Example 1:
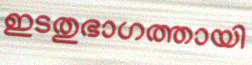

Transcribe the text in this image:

ഇടതുഭാഗത്തായി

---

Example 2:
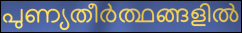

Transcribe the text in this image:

പുണ്യതീർത്ഥങ്ങളിൽ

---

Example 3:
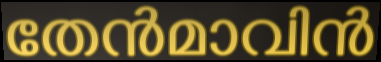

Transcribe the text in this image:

തേൻമാവിൻ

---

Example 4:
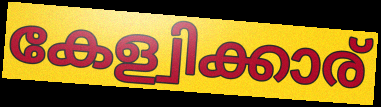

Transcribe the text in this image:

കേള്വിക്കാര്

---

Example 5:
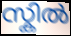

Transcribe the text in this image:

സ്കിൽ